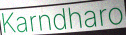
Karndharo